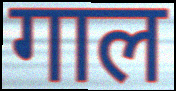
गाल